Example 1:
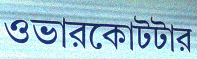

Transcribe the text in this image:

ওভারকোটটার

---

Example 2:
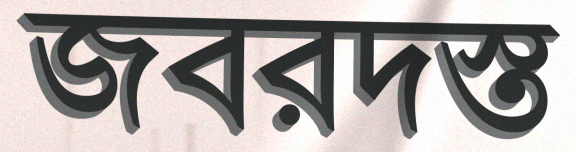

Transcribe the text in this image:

জবরদস্ত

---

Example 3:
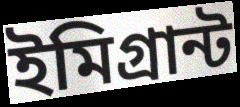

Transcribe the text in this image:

ইমিগ্রান্ট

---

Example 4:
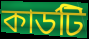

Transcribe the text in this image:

কার্ডটি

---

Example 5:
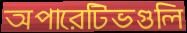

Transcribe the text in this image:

অপারেটিভগুলি